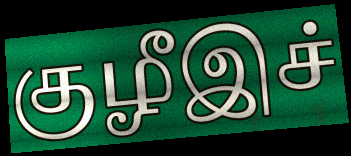
குழீஇச்